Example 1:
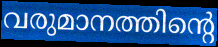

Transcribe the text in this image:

വരുമാനത്തിന്റെ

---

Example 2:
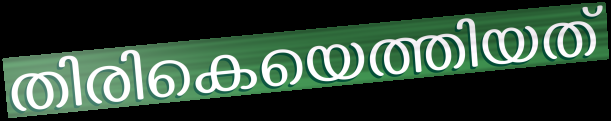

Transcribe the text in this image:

തിരികെയെത്തിയത്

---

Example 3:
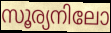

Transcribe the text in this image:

സൂര്യനിലോ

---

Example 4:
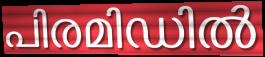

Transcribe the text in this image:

പിരമിഡിൽ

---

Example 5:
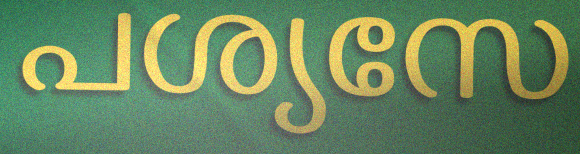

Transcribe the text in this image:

പശ്യസേ